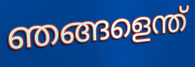
ഞങ്ങളെന്ത്